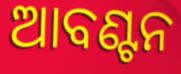
ଆବଣ୍ଟନ